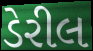
ડેરીલ